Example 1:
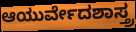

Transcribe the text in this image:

ಆಯುರ್ವೇದಶಾಸ್ತ್ರ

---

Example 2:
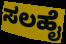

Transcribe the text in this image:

ಸಲಹೈ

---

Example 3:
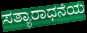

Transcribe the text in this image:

ಸತ್ಯಾರಾಧನೆಯ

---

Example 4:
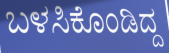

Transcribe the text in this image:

ಬಳಸಿಕೊಂಡಿದ್ದ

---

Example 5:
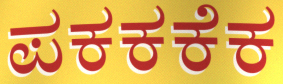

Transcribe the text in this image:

ಪಕಕಕೆಕ